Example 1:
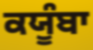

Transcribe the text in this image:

ਕਯੂੰਬਾ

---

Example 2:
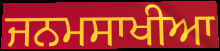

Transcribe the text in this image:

ਜਨਮਸਾਖੀਆ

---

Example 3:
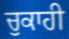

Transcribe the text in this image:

ਚੁਕਾਹੀ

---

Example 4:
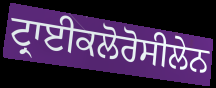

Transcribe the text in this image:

ਟ੍ਰਾਈਕਲੋਰੋਸੀਲੇਨ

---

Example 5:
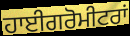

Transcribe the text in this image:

ਹਾਈਗਰੋਮੀਟਰਾਂ